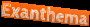
Exanthema